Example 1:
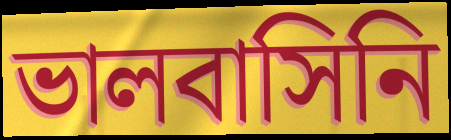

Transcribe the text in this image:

ভালবাসিনি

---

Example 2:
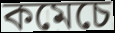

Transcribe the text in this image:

কমেচে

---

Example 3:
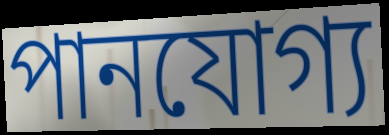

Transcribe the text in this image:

পানযোগ্য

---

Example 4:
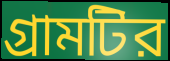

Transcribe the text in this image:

গ্রামটির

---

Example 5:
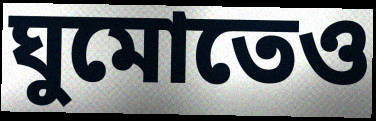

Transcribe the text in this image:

ঘুমোতেও